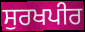
ਸੁਰਖਪੀਰ